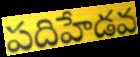
పదిహేడవ